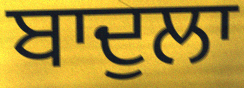
ਬਾਦੁਲਾ